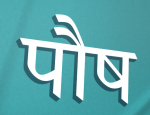
पौष